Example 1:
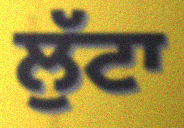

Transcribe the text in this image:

ਲੁੱਟਾ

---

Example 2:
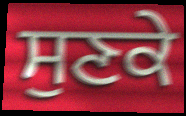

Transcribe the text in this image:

ਸੁਣਕੇ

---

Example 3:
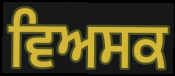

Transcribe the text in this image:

ਵਿਅਸਕ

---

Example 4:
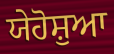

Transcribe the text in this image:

ਯੇਹੋਸ਼ੁਆ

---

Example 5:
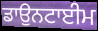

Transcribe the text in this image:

ਡਾਉਨਟਾਈਮ